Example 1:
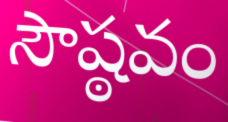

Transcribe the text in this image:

సౌష్ఠవం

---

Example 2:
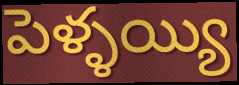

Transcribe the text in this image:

పెళ్ళయ్యి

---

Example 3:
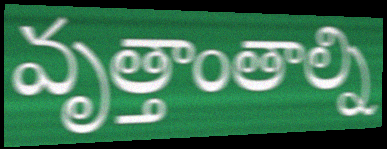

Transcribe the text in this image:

వృత్తాంతాల్ని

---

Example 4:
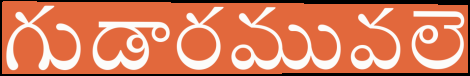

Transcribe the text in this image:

గుడారమువలె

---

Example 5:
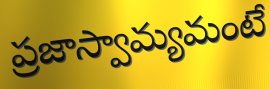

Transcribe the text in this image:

ప్రజాస్వామ్యమంటే